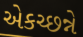
એકચ્છન્ને